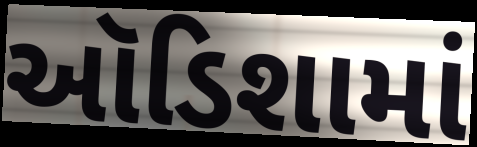
ઑડિશામાં